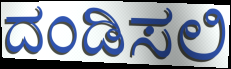
ದಂಡಿಸಲಿ